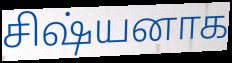
சிஷ்யனாக